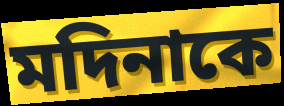
মদিনাকে